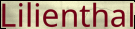
Lilienthal